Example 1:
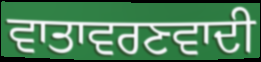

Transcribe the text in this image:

ਵਾਤਾਵਰਣਵਾਦੀ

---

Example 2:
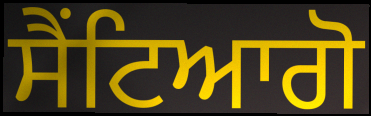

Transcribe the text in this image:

ਸੈਂਟਿਆਗੋ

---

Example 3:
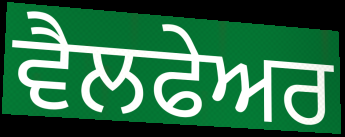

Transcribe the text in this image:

ਵੈਲਫੇਅਰ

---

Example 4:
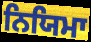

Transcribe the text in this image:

ਨਿਯਿਮਾ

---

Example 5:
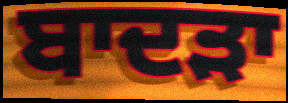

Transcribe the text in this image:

ਬਾਦੜਾ